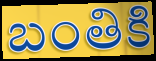
బంతికి